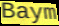
Baym